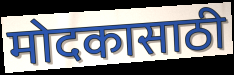
मोदकासाठी